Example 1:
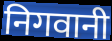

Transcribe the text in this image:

निगवानी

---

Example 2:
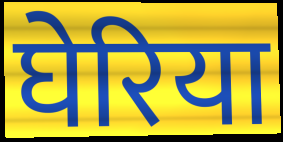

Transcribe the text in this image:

घेरिया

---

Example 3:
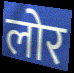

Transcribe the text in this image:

लोर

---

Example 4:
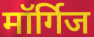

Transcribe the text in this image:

मॉर्गिज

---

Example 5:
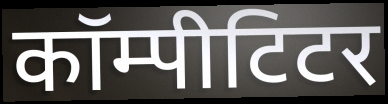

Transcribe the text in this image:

कॉम्पीटिटर